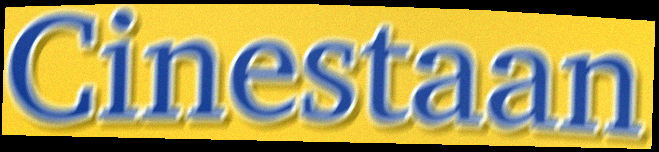
Cinestaan